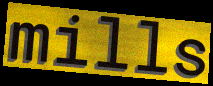
mills